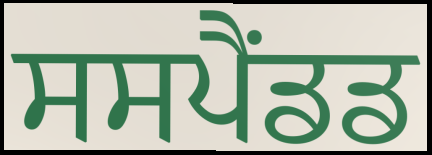
ਸਸਪੈਂਡਡ